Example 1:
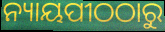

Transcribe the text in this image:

ନ୍ୟାୟପୀଠଠାରୁ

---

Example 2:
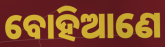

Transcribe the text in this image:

ବୋହିଆଣେ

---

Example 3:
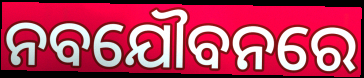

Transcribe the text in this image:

ନବଯୌବନରେ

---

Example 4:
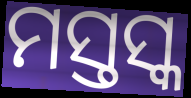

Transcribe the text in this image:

ମସ୍ତସ୍କ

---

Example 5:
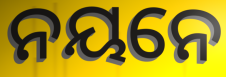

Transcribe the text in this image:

ନୟନେ